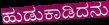
ಹುಡುಕಾಡಿದನು